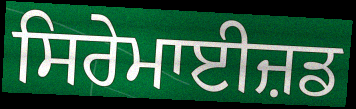
ਸਿਰੇਮਾਈਜ਼ਡ